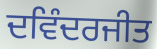
ਦਵਿੰਦਰਜੀਤ